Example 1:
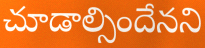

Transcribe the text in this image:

చూడాల్సిందేనని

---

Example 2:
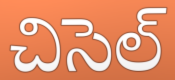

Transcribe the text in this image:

చిసెల్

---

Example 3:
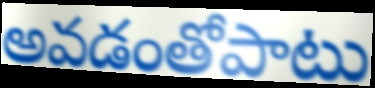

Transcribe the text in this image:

అవడంతోపాటు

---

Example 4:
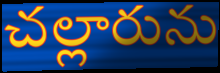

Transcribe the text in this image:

చల్లారును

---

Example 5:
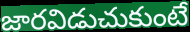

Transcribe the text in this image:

జారవిడుచుకుంటే